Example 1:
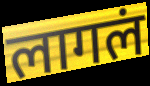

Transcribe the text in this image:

लागलं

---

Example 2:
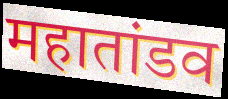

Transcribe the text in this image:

महातांडव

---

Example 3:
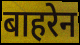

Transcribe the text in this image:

बाहरेन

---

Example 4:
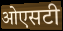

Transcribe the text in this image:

ओएसटी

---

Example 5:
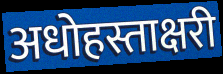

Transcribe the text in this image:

अधोहस्ताक्षरी